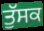
ਤੁੱਸਕ